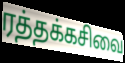
ரத்தக்கசிவை